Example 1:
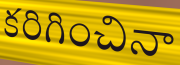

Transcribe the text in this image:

కరిగించినా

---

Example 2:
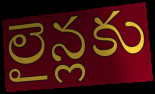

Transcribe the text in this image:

లైన్లకు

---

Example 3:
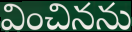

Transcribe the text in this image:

వించినను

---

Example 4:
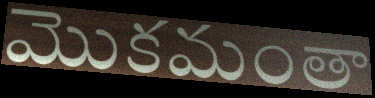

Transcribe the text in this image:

మొకమంతా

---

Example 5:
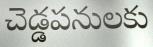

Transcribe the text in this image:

చెడ్డపనులకు